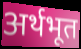
अर्थभूत